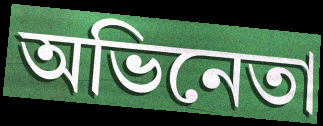
অভিনেতা